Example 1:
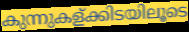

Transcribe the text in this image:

കുന്നുകള്ക്കിടയിലൂടെ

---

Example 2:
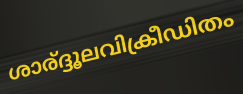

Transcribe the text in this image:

ശാര്ദ്ദൂലവിക്രീഡിതം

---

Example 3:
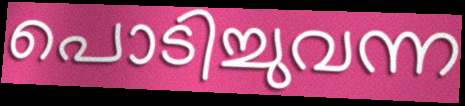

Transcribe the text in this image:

പൊടിച്ചുവന്ന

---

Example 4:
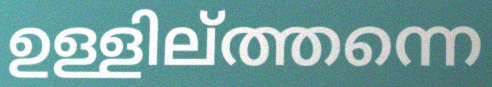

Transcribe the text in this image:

ഉള്ളില്ത്തന്നെ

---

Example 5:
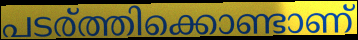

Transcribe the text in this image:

പടര്ത്തിക്കൊണ്ടാണ്